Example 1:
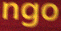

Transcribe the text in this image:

ngo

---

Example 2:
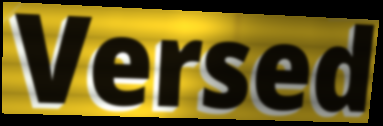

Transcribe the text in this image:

Versed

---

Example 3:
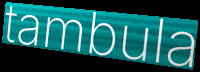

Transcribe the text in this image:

tambula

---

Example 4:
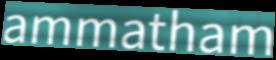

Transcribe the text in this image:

ammatham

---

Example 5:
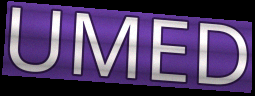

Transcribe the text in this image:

UMED